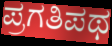
ಪ್ರಗತಿಪಥ